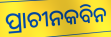
ପ୍ରାଚୀନକବିନ